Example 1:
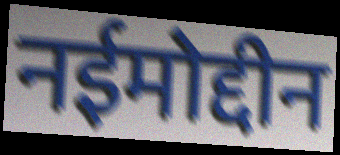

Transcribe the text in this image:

नईमोद्दीन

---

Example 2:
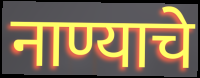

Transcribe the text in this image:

नाण्याचे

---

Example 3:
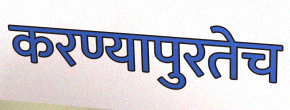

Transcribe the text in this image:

करण्यापुरतेच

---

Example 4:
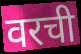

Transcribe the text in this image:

वरची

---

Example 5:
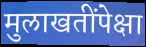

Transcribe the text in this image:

मुलाखतींपेक्षा